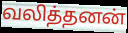
வலித்தனன்